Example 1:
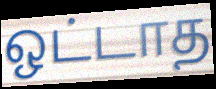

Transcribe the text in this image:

ஒட்டாத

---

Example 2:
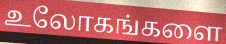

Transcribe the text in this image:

உலோகங்களை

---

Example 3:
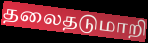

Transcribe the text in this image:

தலைதடுமாறி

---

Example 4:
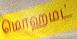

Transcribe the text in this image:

மொஹமட்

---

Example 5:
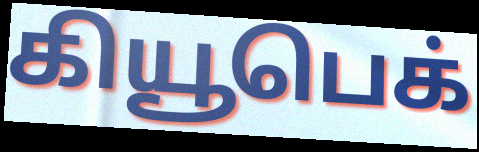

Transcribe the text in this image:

கியூபெக்